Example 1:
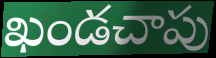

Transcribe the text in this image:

ఖండచాపు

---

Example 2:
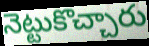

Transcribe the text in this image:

నెట్టుకొచ్చారు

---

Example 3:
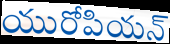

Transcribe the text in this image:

యురోపియన్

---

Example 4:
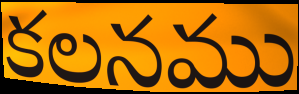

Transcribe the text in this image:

కలనము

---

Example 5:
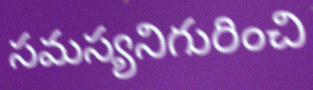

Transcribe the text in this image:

సమస్యనిగురించి